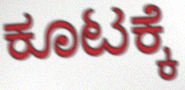
ಕೂಟಕ್ಕೆ